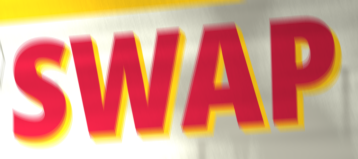
SWAP